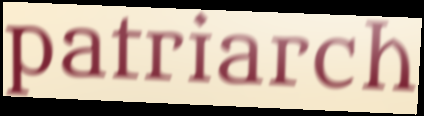
patriarch